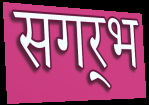
सगर्भ